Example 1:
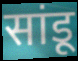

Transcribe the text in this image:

सांडू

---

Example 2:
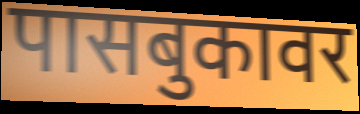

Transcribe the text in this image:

पासबुकावर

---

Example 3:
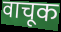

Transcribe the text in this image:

वाचूक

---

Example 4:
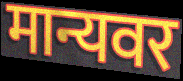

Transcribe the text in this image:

मान्यवर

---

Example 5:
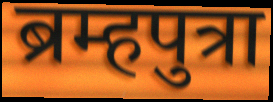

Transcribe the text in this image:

ब्रम्हपुत्रा